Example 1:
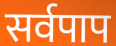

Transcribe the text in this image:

सर्वपाप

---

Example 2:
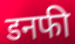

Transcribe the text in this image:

डनफी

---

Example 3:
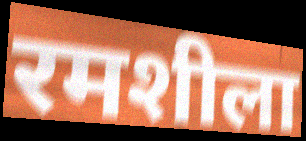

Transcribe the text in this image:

रमशीला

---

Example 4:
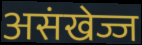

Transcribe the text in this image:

असंखेज्ज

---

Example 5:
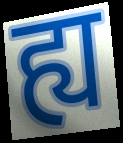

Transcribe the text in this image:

ह्य